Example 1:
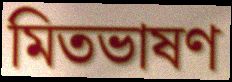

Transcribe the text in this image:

মিতভাষণ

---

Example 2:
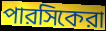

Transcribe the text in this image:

পারসিকেরা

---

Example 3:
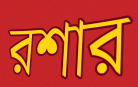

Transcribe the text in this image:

রশার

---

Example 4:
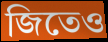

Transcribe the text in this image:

জিতেও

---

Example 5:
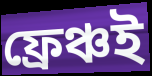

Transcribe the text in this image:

ফ্রেঞ্চই